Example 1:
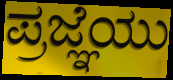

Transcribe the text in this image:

ಪ್ರಜ್ಞೆಯು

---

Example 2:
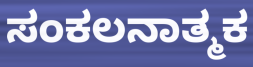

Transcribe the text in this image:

ಸಂಕಲನಾತ್ಮಕ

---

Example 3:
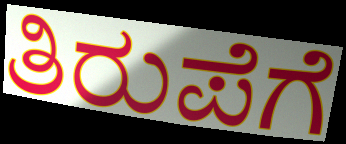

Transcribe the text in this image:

ತಿರುಪೆಗೆ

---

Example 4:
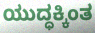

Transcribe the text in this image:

ಯುದ್ಧಕ್ಕಿಂತ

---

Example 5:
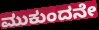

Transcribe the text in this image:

ಮುಕುಂದನೇ